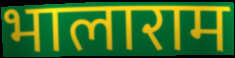
भालाराम